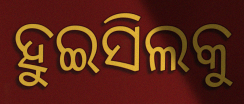
ହୁଇସିଲକୁ